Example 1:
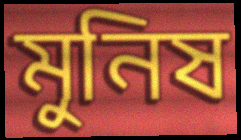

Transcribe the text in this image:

মুনিষ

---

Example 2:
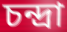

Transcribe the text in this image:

চন্দ্রা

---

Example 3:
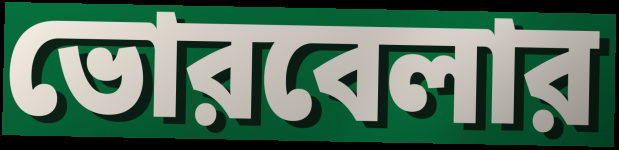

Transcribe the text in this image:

ভোরবেলার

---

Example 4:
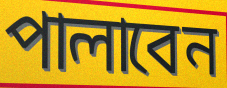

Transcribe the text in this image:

পালাবেন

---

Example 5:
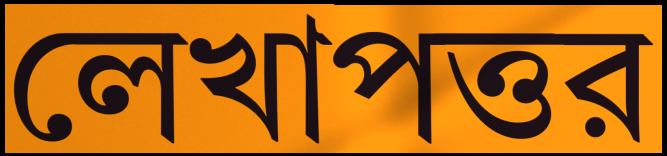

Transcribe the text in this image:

লেখাপত্তর